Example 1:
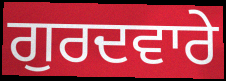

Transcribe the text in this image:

ਗੁਰਦਵਾਰੇ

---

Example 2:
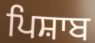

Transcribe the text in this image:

ਪਿਸ਼ਾਬ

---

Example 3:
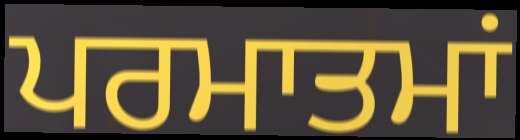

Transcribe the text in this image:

ਪਰਮਾਤਮਾਂ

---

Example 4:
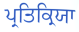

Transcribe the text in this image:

ਪ੍ਰਤਿਕ੍ਰਿਯਾ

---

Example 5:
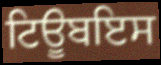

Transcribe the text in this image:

ਟਿਊਬਇਸ